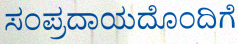
ಸಂಪ್ರದಾಯದೊಂದಿಗೆ